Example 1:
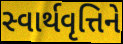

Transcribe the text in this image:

સ્વાર્થવૃત્તિને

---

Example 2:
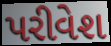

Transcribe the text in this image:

પરીવેશ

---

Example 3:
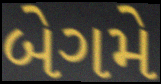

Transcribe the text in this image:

બેગમે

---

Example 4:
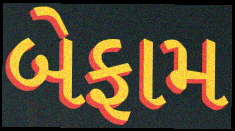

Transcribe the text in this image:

બેફામ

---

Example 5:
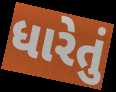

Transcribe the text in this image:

ધારેતું